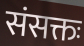
संसक्तः